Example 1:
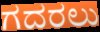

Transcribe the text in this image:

ಗದರಲು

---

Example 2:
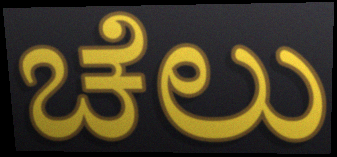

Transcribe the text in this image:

ಚೆಲು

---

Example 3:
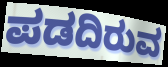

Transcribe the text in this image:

ಪಡದಿರುವ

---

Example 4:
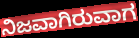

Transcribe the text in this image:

ನಿಜವಾಗಿರುವಾಗ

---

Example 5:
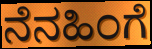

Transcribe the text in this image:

ನೆನಹಿಂಗೆ